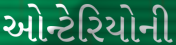
ઓન્ટેરિયોની